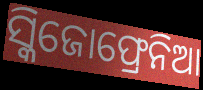
ସ୍କିଜୋଫ୍ରେନିଆ